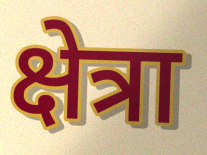
क्षेत्रा